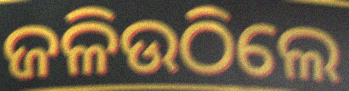
ଜଳିଉଠିଲେ